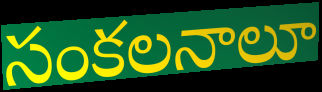
సంకలనాలూ